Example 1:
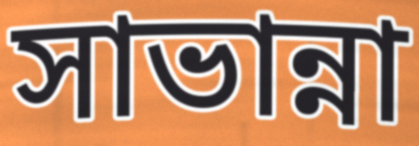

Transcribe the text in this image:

সাভান্না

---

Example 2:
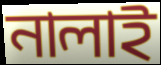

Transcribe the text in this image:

নালাই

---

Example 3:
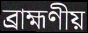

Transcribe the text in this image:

ব্রাহ্মণীয়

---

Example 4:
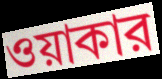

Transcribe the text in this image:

ওয়াকার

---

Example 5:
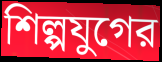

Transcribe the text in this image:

শিল্পযুগের